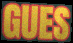
GUES